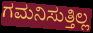
ಗಮನಿಸುತ್ತಿಲ್ಲ